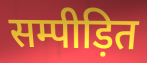
सम्पीड़ित